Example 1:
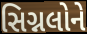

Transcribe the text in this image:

સિગ્નલોને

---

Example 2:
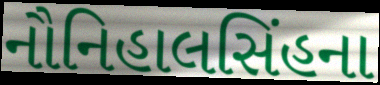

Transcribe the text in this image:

નૌનિહાલસિંહના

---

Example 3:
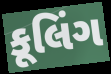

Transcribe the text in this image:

કૂલિંગ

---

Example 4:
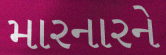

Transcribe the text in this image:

મારનારને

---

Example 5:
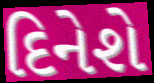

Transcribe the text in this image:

દિનેશે